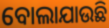
ବୋଲାଯାଉଛି